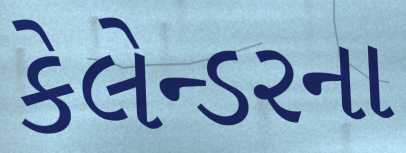
કેલેન્ડરના